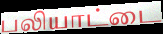
பலியாட்டை